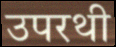
उपरथी